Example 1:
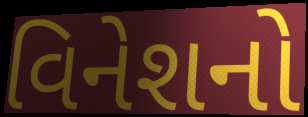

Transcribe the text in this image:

વિનેશનો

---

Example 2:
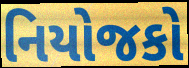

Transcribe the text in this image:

નિયોજકો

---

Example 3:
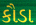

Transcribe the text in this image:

કૌડા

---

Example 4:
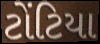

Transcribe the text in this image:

ટોંટિયા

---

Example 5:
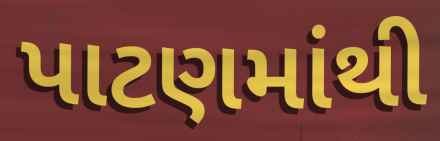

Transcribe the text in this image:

પાટણમાંથી